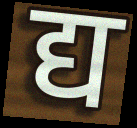
द्य